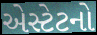
એસ્ટેટનો